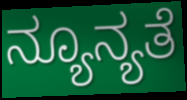
ನ್ಯೂನ್ಯತೆ